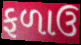
ફળાઉ